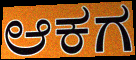
ಆಕಗ